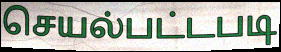
செயல்பட்டபடி